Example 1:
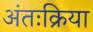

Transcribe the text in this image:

अंतःक्रिया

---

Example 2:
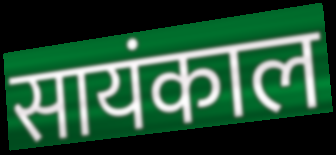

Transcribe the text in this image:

सायंकाल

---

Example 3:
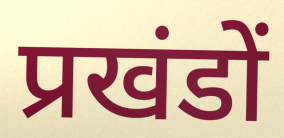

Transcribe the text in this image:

प्रखंडों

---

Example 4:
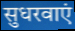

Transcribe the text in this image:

सुधरवाएं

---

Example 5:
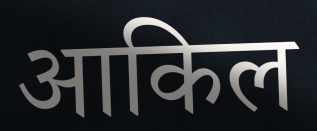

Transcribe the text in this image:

आकिल